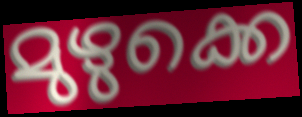
മുഴുക്കെ